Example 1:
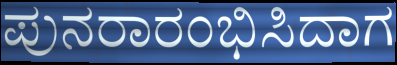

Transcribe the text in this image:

ಪುನರಾರಂಭಿಸಿದಾಗ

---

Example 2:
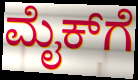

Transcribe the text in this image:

ಮೈಕ್‌ಗೆ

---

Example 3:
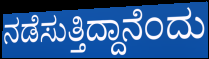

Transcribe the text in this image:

ನಡೆಸುತ್ತಿದ್ದಾನೆಂದು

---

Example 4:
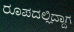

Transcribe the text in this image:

ರೂಪದಲ್ಲಿದ್ದಾಗ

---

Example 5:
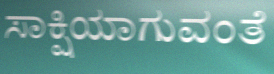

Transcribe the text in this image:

ಸಾಕ್ಷಿಯಾಗುವಂತೆ